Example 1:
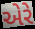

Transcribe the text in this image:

એરે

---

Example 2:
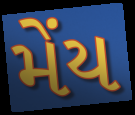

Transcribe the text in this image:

મેંય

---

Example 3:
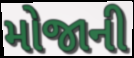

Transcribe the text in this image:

મોજાની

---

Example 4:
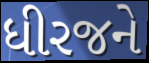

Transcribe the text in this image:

ધીરજને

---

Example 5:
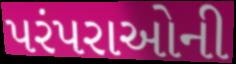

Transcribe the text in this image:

પરંપરાઓની